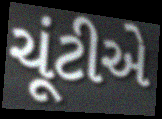
ચૂંટીએ